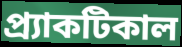
প্র্যাকটিকাল